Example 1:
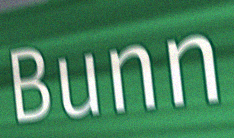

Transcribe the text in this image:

Bunn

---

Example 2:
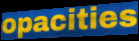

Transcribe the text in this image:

opacities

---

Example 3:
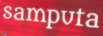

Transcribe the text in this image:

samputa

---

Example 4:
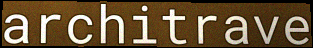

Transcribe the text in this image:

architrave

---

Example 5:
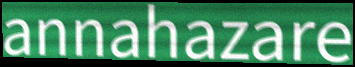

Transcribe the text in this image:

annahazare